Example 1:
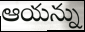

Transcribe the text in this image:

ఆయన్ను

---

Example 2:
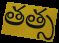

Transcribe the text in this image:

తత్స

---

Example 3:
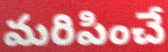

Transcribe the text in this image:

మరిపించే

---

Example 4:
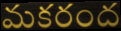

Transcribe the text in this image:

మకరంద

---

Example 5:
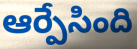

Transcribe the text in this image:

ఆర్పేసింది